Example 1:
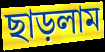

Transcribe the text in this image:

ছাড়লাম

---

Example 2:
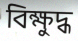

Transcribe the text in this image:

বিক্ষুদ্ধ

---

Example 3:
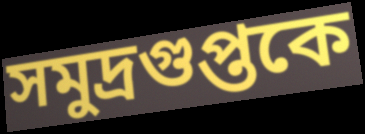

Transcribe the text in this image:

সমুদ্রগুপ্তকে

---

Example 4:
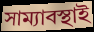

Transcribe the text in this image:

সাম্যাবস্থাই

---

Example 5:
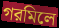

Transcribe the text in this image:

গরমিলে